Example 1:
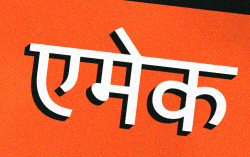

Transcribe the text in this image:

एमेक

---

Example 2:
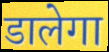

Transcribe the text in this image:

डालेगा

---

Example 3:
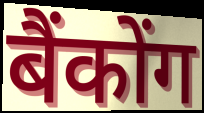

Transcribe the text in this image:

बैंकोंग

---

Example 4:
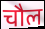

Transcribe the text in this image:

चौल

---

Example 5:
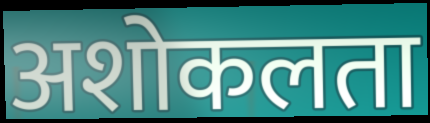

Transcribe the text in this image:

अशोकलता